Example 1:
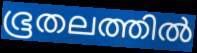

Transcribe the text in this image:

ഭൂതലത്തിൽ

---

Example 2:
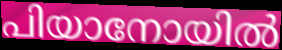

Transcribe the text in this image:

പിയാനോയിൽ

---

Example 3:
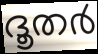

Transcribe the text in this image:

ദൂതർ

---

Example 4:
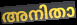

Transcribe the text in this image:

അനിതാ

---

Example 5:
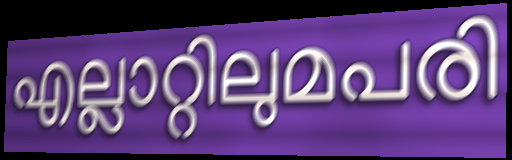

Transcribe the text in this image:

എല്ലാറ്റിലുമപരി